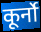
कूर्नो